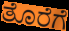
ತೊರೆಗೆ